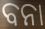
ବନା